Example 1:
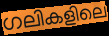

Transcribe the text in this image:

ഗലികളിലെ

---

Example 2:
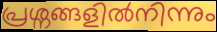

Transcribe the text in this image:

പ്രശ്നങ്ങളിൽനിന്നും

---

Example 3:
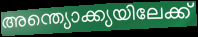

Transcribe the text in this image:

അന്ത്യൊക്ക്യയിലേക്ക്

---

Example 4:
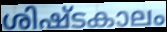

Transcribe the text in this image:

ശിഷ്ടകാലം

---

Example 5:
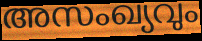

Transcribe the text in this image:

അസംഖ്യവും